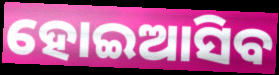
ହୋଇଆସିବ